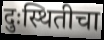
दुःस्थितीचा